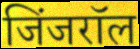
जिंजरॉल